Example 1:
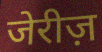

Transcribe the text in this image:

जेरीज़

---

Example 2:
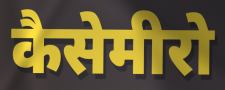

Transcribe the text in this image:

कैसेमीरो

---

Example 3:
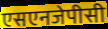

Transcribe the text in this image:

एसएनजेपीसी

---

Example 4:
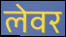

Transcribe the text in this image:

लेवर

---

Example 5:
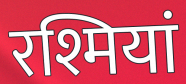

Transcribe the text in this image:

रश्मियां